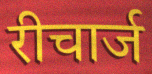
रीचार्ज